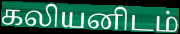
கலியனிடம்